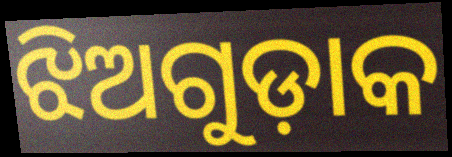
ଝିଅଗୁଡ଼ାକ